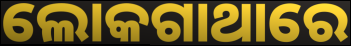
ଲୋକଗାଥାରେ